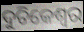
ଦୁତିକେଶ୍ୱର